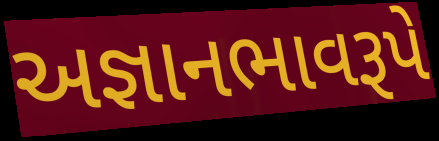
અજ્ઞાનભાવરૂપે